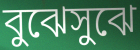
বুঝেসুঝে